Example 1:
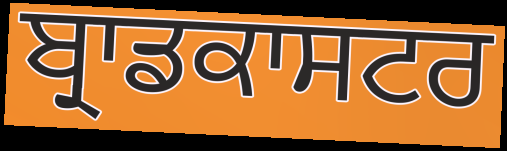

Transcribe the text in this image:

ਬ੍ਰਾਡਕਾਸਟਰ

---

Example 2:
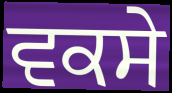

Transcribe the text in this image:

ਵਕਸੇ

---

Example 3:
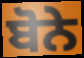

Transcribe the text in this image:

ਬੋਨੇ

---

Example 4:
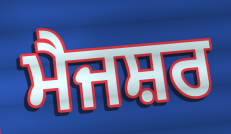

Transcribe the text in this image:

ਮੈਜਸ਼ਰ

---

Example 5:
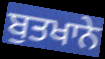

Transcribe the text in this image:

ਬੁਤਖਾਨੇ